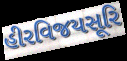
હીરવિજયસૂરિ